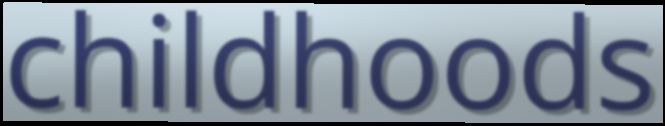
childhoods